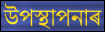
উপস্থাপনাৰ